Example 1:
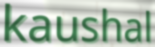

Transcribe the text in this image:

kaushal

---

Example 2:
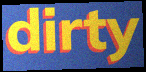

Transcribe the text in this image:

dirty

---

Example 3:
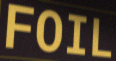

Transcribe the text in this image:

FOIL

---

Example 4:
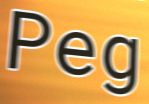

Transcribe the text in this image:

Peg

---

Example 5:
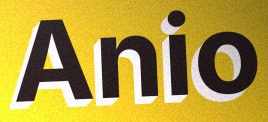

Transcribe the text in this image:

Anio